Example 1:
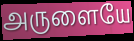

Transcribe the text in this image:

அருளையே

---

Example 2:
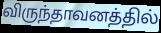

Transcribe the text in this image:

விருந்தாவனத்தில்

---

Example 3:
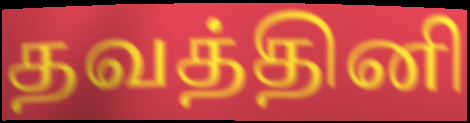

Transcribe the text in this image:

தவத்தினி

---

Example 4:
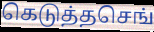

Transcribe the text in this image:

கெடுத்தசெங்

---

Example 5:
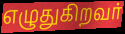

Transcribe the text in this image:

எழுதுகிறவர்